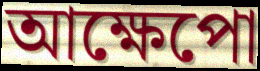
আক্ষেপো